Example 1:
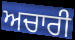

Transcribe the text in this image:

ਅਚਾਰੀ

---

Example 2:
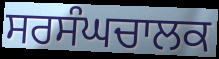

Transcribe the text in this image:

ਸਰਸੰਘਚਾਲਕ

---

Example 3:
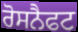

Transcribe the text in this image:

ਰੋਸਨੈਫਟ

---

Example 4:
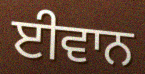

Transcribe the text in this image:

ਈਵਾਨ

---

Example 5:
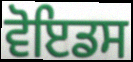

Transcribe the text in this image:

ਵੋਇਡਸ